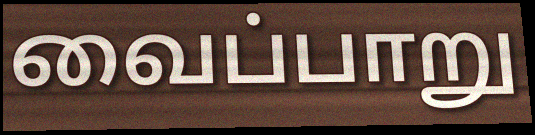
வைப்பாறு